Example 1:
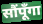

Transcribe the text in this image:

सौंपूँगा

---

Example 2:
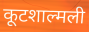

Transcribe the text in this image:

कूटशाल्मली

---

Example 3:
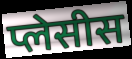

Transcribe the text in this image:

प्लेसीस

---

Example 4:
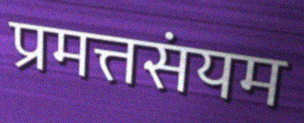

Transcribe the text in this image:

प्रमत्तसंयम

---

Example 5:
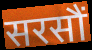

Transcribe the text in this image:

सरसौं